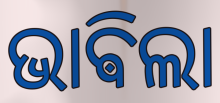
ଭାଵିଲା